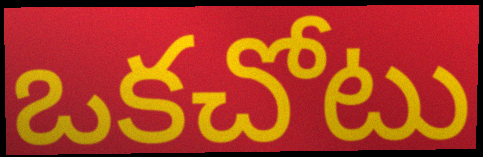
ఒకచోటు